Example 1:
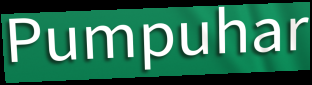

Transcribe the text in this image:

Pumpuhar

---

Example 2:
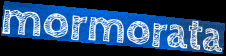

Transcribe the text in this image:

mormorata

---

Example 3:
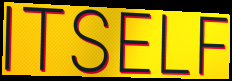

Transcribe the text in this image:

ITSELF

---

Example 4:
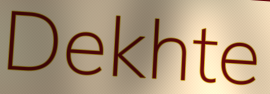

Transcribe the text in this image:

Dekhte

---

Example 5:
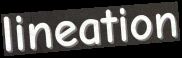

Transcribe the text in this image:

lineation